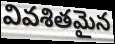
వివశితమైన